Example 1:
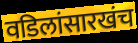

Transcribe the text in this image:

वडिलांसारखंच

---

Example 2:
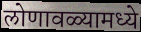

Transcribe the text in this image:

लोणावळ्यामध्ये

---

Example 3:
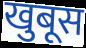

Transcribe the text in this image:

खुबूस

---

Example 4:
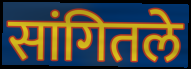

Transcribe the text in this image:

सांगितले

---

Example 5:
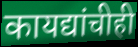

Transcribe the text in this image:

कायद्यांचीही